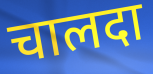
चालदा